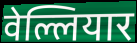
वेल्लियार